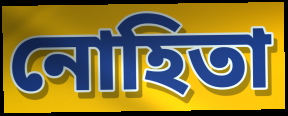
নোহিতা